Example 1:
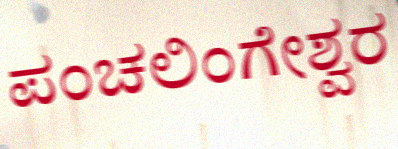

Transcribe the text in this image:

ಪಂಚಲಿಂಗೇಶ್ವರ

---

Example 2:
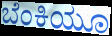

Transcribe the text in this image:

ಬೆಂಕಿಯೂ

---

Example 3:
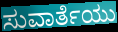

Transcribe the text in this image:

ಸುವಾರ್ತೆಯು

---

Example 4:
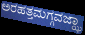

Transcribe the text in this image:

ಅರಹತ್ತಮಗ್ಗವಜ್ಝಾ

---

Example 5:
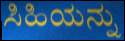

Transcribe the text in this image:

ಸಿಹಿಯನ್ನು